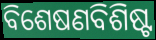
ବିଶେଷଣବିଶିଷ୍ଟ